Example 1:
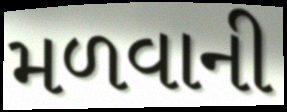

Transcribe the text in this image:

મળવાની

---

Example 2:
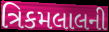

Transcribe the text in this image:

ત્રિકમલાલની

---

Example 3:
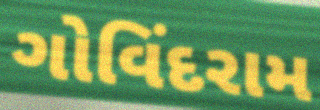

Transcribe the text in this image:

ગોવિંદરામ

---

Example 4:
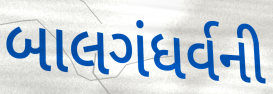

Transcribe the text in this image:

બાલગંધર્વની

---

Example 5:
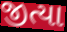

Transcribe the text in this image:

જીત્યા